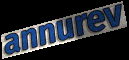
annurev